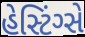
હેસ્ટિંગ્સે